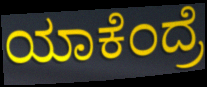
ಯಾಕೆಂದ್ರೆ